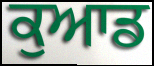
ਕੁਆਡ